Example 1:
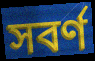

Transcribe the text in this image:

সবৰ্ণ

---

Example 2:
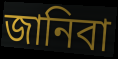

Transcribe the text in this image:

জানিবা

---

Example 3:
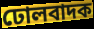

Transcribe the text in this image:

ঢোলবাদক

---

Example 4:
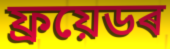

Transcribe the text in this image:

ফ্ৰয়েডৰ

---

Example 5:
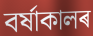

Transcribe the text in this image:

বৰ্ষাকালৰ